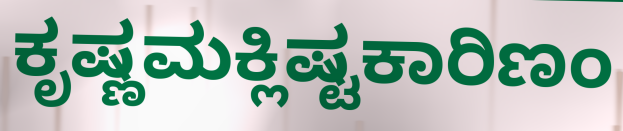
ಕೃಷ್ಣಮಕ್ಲಿಷ್ಟಕಾರಿಣಂ